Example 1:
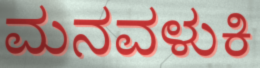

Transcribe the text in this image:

ಮನವಳುಕಿ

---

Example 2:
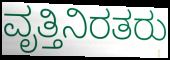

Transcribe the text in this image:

ವೃತ್ತಿನಿರತರು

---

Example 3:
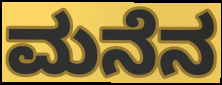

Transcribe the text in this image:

ಮನೆನ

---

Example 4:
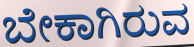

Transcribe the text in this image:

ಬೇಕಾಗಿರುವ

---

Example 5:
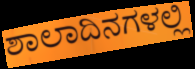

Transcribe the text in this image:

ಶಾಲಾದಿನಗಳಲ್ಲಿ